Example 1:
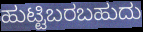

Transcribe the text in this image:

ಹುಟ್ಟಿಬರಬಹುದು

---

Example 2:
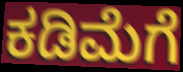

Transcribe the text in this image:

ಕಡಿಮೆಗೆ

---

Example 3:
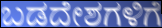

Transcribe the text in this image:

ಬಡದೇಶಗಳಿಗೆ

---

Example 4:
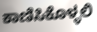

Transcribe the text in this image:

ಕಾಣಿಸಿಕೊಳ್ಳಲಿ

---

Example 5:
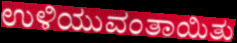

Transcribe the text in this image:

ಉಳಿಯುವಂತಾಯಿತು